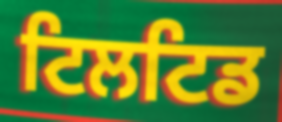
ਟਿਲਟਿਡ